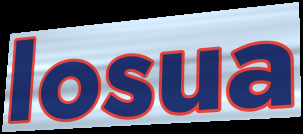
Iosua